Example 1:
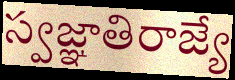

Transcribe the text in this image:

స్వజ్ఞాతిరాజ్యే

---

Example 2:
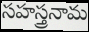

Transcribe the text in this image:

సహస్త్రనామ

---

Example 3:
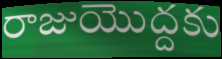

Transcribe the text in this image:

రాజుయొద్దకు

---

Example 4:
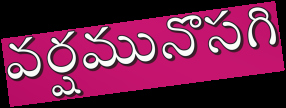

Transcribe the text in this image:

వర్షమునొసగి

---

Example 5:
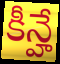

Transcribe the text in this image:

కీన్హే